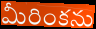
మీరింకను